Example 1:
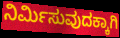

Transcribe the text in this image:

ನಿರ್ಮಿಸುವುದಕ್ಕಾಗಿ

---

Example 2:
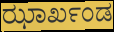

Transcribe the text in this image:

ಝಾರ್ಖಂಡ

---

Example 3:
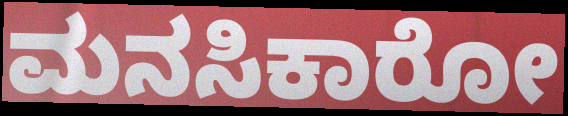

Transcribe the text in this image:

ಮನಸಿಕಾರೋ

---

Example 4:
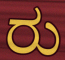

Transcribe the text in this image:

ರು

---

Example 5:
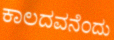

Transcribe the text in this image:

ಕಾಲದವನೆಂದು